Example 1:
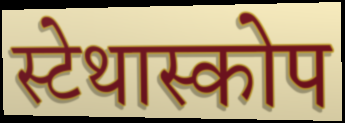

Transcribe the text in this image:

स्टेथास्कोप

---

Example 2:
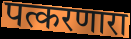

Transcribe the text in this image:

पत्करणारा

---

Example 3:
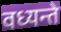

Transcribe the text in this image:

वध्यन्ते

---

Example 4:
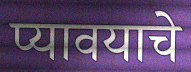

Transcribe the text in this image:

प्यावयाचे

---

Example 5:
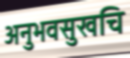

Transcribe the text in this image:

अनुभवसुखचि